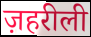
ज़हरीली